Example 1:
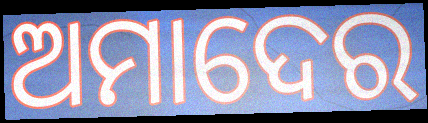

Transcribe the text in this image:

ଅମାଦେର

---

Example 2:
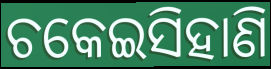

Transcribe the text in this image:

ଚକେଇସିହାଣି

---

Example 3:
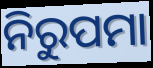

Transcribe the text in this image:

ନିରୁପମା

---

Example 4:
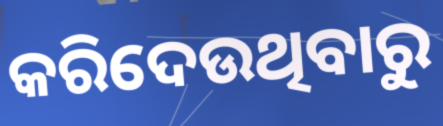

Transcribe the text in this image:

କରିଦେଉଥିବାରୁ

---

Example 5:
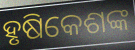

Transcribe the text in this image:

ହୃଷିକେଶଙ୍କ